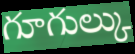
గూగుల్కు